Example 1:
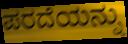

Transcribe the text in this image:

ಪರದೆಯನ್ನು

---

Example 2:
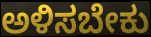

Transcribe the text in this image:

ಅಳಿಸಬೇಕು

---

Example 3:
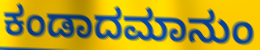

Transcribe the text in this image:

ಕಂಡಾದಮಾನುಂ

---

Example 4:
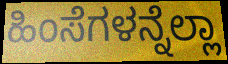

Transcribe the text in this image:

ಹಿಂಸೆಗಳನ್ನೆಲ್ಲಾ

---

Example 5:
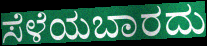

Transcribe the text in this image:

ಸೆಳೆಯಬಾರದು